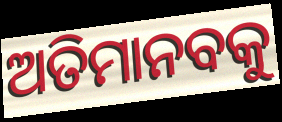
ଅତିମାନବକୁ